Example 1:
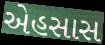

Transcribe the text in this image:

એહસાસ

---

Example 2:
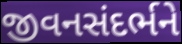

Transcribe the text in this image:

જીવનસંદર્ભને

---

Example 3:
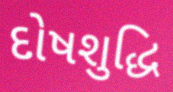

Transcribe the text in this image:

દોષશુદ્ધિ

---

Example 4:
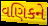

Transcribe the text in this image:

વણિકને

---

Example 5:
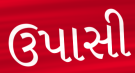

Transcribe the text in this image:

ઉપાસી